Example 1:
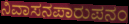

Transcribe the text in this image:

ನಿವಾಸನಪಾರುಪನಂ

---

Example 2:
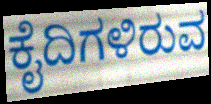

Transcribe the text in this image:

ಕೈದಿಗಳಿರುವ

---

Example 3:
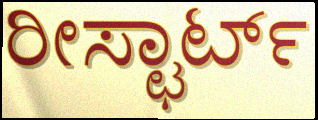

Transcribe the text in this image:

ರೀಸ್ಟಾರ್ಟ್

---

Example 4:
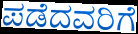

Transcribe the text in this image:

ಪಡೆದವರಿಗೆ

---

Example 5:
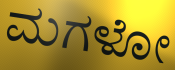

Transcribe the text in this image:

ಮಗಳೋ